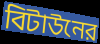
বিটাউনের